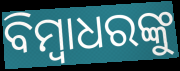
ବିମ୍ୱାଧରଙ୍କୁ